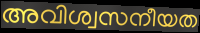
അവിശ്വസനീയത